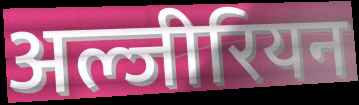
अल्जीरियन